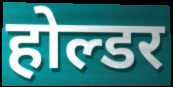
होल्डर